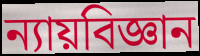
ন্যায়বিজ্ঞান